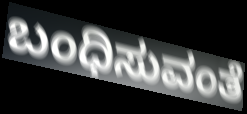
ಬಂಧಿಸುವಂತೆ